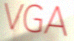
VGA